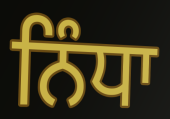
ਨਿੰਧਾ